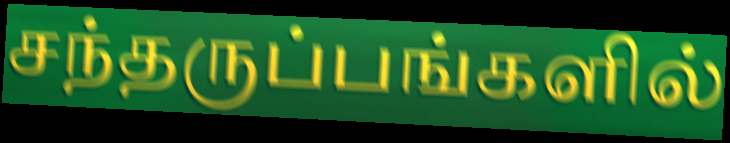
சந்தருப்பங்களில்